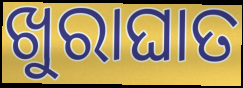
ଖୁରାଘାତ